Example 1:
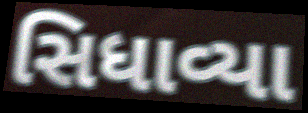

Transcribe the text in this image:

સિધાવ્યા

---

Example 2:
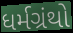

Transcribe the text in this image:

ધર્મગ્રંથો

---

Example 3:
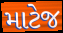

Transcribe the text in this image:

માટેજ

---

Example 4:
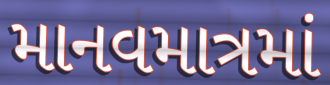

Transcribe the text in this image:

માનવમાત્રમાં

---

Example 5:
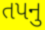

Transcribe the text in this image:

તપનુ